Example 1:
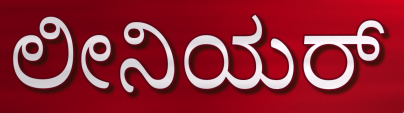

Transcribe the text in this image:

ಲೀನಿಯರ್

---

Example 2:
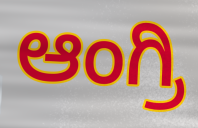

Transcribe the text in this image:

ಆಂಗ್ರಿ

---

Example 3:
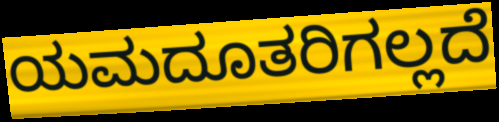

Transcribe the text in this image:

ಯಮದೂತರಿಗಲ್ಲದೆ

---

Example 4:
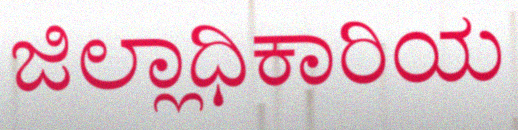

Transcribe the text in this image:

ಜಿಲ್ಲಾಧಿಕಾರಿಯ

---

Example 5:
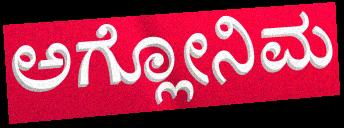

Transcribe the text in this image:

ಅಗ್ಲೋನಿಮ